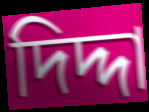
দিদ্দা